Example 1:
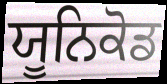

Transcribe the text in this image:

ਯੂਨਿਕੋਡ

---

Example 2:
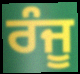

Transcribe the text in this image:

ਰੰਜੂ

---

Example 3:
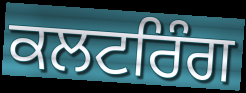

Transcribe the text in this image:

ਕਲਟਰਿੰਗ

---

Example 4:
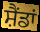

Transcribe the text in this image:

ਸ਼ੈਂਡਾਂ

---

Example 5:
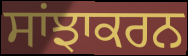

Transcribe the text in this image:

ਸਾਂਝਾਕਰਨ